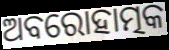
ଅବରୋହାତ୍ମକ